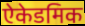
ऐकेडमिक